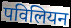
पविलियन